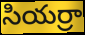
సియర్రా